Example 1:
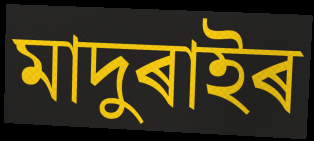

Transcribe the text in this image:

মাদুৰাইৰ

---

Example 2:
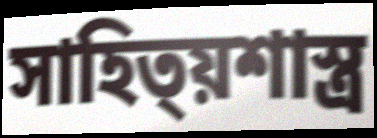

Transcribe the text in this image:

সাহিত্য়শাস্ত্ৰ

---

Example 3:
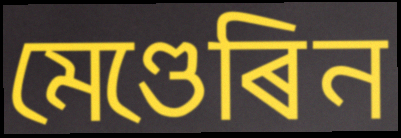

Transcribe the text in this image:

মেণ্ডেৰিন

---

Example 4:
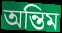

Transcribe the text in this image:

অন্তিম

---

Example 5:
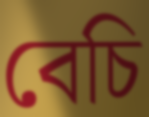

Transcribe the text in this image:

বেচি